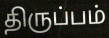
திருப்பம்